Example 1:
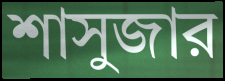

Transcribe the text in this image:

শাসুজার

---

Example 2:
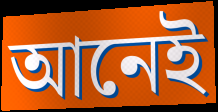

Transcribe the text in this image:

আনেই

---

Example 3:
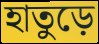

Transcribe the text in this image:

হাতুড়ে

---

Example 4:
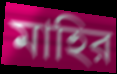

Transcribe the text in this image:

মাহির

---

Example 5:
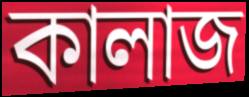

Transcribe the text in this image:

কালাজ